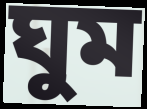
ঘুম